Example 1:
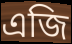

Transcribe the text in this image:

এজি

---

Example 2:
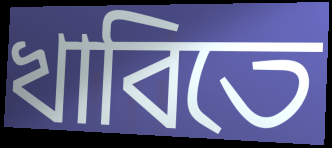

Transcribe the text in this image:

খাবিতে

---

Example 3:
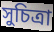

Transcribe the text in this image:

সুচিত্রা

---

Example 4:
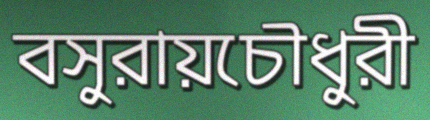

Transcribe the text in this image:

বসুরায়চৌধুরী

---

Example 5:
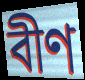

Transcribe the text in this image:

বীণ